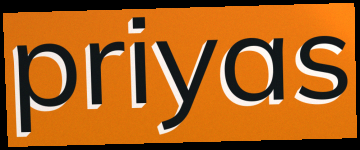
priyas